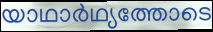
യാഥാർഥ്യത്തോടെ